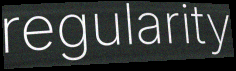
regularity